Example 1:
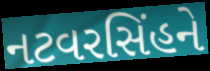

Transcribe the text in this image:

નટવરસિંહને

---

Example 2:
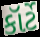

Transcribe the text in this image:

કૉર્ટે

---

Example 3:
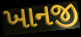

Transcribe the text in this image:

ખાનજી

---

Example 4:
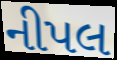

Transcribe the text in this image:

નીપલ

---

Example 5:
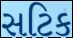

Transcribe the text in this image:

સટિક